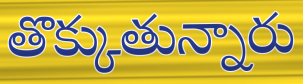
తొక్కుతున్నారు